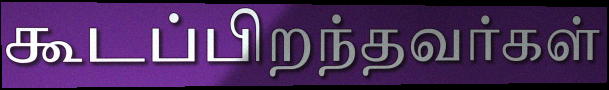
கூடப்பிறந்தவர்கள்